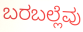
ಬರಬಲ್ಲೆವು